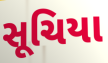
સૂચિયા